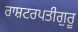
ਰਾਸ਼ਟਰਪਤੀਗੁਰੂ